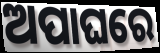
ଅପାଘରେ